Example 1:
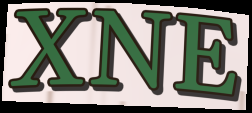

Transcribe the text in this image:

XNE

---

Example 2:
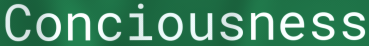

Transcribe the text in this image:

Conciousness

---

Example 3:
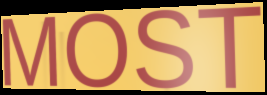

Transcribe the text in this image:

MOST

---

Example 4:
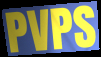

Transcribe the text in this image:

PVPS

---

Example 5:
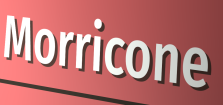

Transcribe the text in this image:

Morricone